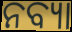
ନବ୍ୟା